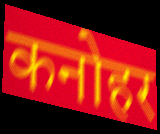
कनोहर